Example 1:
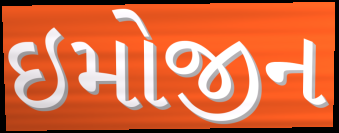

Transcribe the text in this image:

ઇમોજીન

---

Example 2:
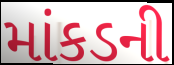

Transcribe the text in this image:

માંકડની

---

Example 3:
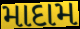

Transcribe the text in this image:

માદામ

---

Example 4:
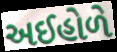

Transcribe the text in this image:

અઈહોળે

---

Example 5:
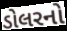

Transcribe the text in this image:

ડોલરનો